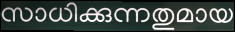
സാധിക്കുന്നതുമായ